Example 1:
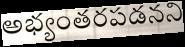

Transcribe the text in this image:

అభ్యంతరపడనని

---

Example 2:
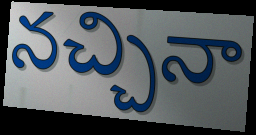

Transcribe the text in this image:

నచ్చినా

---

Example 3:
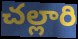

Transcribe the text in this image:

చల్లారి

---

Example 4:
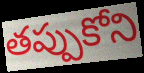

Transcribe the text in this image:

తప్పుకోని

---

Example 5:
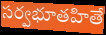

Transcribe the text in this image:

సర్వభూతహితే